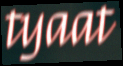
tyaat